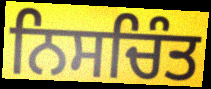
ਨਿਸਚਿੰਤ